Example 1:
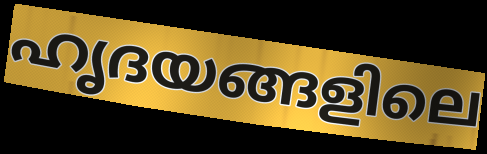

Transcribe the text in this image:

ഹൃദയങ്ങളിലെ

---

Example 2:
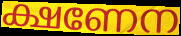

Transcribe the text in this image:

ക്ഷണേന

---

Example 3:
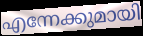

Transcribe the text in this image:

എന്നേക്കുമായി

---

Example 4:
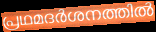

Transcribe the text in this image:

പ്രഥമദർശനത്തിൽ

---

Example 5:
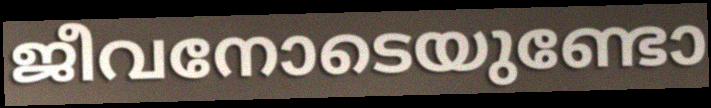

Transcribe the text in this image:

ജീവനോടെയുണ്ടോ